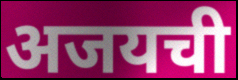
अजयची